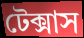
টেক্সাস